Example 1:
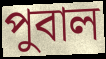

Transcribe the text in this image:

পুবাল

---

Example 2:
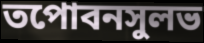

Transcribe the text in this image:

তপোবনসুলভ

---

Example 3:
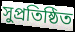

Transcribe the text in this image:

সুপ্রতিষ্ঠিত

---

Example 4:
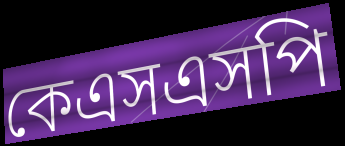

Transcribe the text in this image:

কেএসএসপি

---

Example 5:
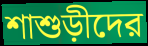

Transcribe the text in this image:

শাশুড়ীদের